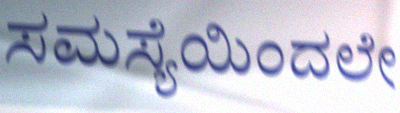
ಸಮಸ್ಯೆಯಿಂದಲೇ